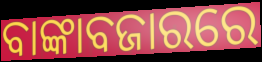
ବାଙ୍କାବଜାରରେ